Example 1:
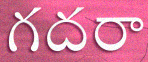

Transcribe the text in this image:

గదరా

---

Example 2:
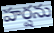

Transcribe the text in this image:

హర్షను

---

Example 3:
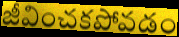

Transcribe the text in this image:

జీవించకపోవడం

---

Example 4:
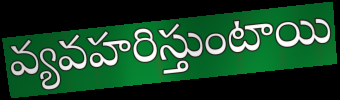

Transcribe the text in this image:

వ్యవహరిస్తుంటాయి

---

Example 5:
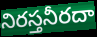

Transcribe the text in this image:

నిరస్తనీరదా